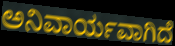
ಅನಿವಾರ್ಯವಾಗಿದೆ